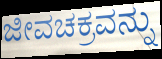
ಜೀವಚಕ್ರವನ್ನು